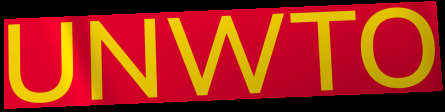
UNWTO